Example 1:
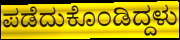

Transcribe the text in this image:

ಪಡೆದುಕೊಂಡಿದ್ದಳು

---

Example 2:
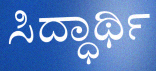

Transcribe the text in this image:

ಸಿದ್ಧಾರ್ಥಿ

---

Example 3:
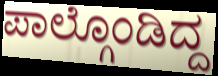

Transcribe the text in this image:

ಪಾಲ್ಗೊಂಡಿದ್ದ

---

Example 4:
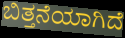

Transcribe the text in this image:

ಬಿತ್ತನೆಯಾಗಿದೆ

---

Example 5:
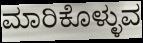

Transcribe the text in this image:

ಮಾರಿಕೊಳ್ಳುವ